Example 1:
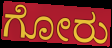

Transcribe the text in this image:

ಗೋರು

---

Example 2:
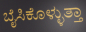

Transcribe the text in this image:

ಬೈಸಿಕೊಳ್ಳುತ್ತಾ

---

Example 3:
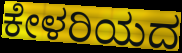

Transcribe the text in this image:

ಕೇಳರಿಯದ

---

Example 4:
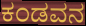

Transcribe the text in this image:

ಕಂಡವನ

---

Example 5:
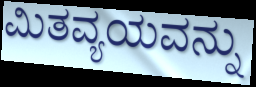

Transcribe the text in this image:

ಮಿತವ್ಯಯವನ್ನು